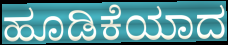
ಹೂಡಿಕೆಯಾದ